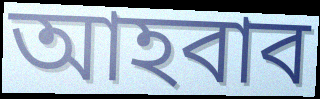
আহবাব